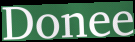
Donee